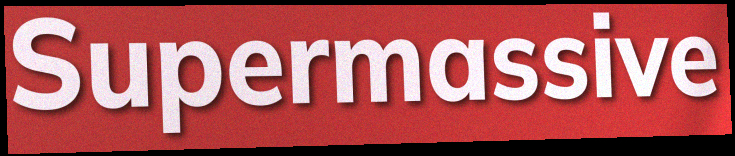
Supermassive